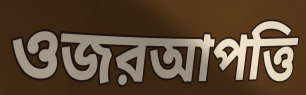
ওজরআপত্তি